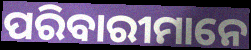
ପରିବାରୀମାନେ